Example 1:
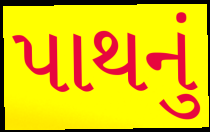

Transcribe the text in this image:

પાથનું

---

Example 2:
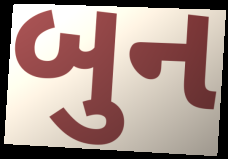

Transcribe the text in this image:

બુન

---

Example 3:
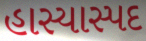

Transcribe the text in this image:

હાસ્યાસ્પદ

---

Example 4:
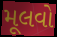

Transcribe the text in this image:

મૂલવો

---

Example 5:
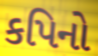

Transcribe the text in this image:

કપિનો